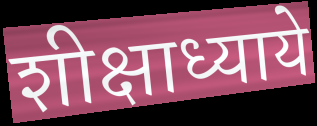
शीक्षाध्याये